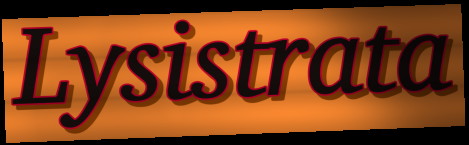
Lysistrata